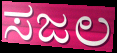
ಸಜಲ